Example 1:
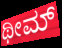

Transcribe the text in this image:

ಥೀಮ್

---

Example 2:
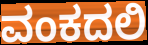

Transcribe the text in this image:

ವಂಕದಲಿ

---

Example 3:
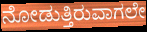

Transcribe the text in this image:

ನೋಡುತ್ತಿರುವಾಗಲೇ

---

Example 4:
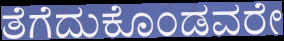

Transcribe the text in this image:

ತೆಗೆದುಕೊಂಡವರೇ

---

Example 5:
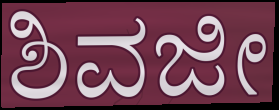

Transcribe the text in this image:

ಶಿವಜೀ